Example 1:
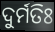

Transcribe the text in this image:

ଦୁର୍ମତିଃ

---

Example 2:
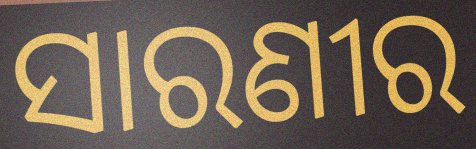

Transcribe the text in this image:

ସାରଣୀର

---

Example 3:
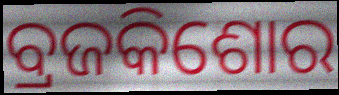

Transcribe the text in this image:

ବ୍ରଜକିଶୋର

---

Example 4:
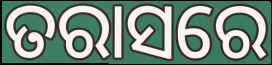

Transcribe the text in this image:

ତରାସରେ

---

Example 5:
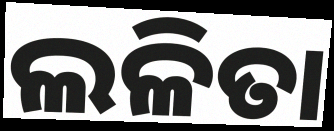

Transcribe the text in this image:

ଲଳିତା